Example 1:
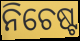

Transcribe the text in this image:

ନିଚେଷ୍ଟ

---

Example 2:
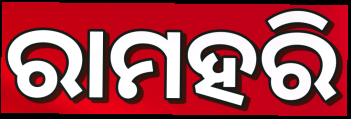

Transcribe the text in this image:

ରାମହରି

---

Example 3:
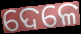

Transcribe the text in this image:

ଦେଳେ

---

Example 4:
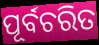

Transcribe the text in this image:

ପୂର୍ବଚରିତ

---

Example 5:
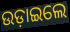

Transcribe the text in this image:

ଉଡ଼ାଇଲେ